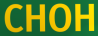
CHOH